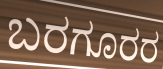
ಬರಗೂರರ